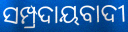
ସମ୍ପ୍ରଦାୟବାଦୀ